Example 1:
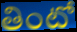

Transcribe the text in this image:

తింటో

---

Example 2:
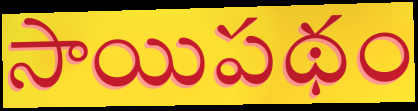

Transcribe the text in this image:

సాయిపథం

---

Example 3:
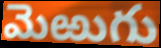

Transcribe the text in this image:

మెఱుగు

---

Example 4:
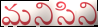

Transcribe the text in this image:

మనిసిని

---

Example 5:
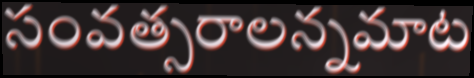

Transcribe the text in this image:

సంవత్సరాలన్నమాట